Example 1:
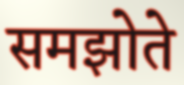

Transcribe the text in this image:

समझोते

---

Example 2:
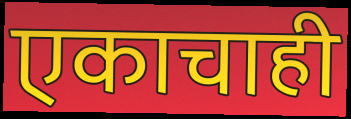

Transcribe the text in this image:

एकाचाही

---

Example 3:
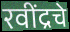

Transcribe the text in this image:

रवींद्रचे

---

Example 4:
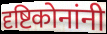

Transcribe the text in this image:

दृष्टिकोनांनी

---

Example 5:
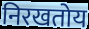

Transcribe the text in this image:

निरखतोय